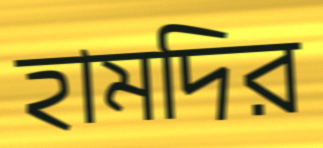
হামদির